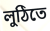
লুঠিতে